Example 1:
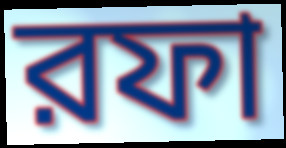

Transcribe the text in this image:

রফা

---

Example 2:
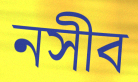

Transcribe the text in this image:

নসীব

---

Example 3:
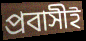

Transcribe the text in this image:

প্রবাসীই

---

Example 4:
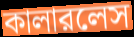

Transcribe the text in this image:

কালারলেস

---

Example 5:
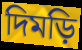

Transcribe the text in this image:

দিমড়ি